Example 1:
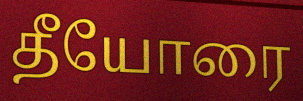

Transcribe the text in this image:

தீயோரை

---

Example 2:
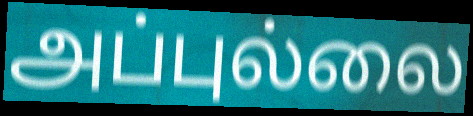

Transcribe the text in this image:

அப்புல்லை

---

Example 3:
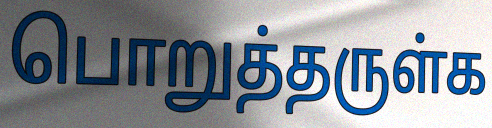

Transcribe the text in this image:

பொறுத்தருள்க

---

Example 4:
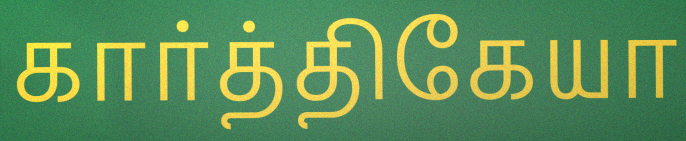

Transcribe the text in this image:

கார்த்திகேயா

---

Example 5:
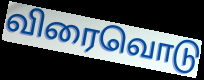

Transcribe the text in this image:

விரைவொடு